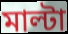
মাল্টা